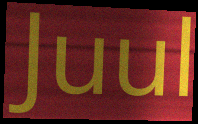
Juul